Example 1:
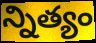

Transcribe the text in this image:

న్నిత్యం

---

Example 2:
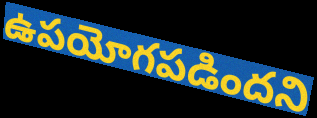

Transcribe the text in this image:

ఉపయోగపడిందని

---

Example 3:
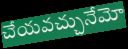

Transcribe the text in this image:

చేయవచ్చునేమో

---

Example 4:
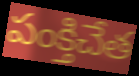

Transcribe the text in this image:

పంక్తిచేత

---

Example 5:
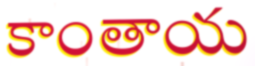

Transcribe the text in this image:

కాంతాయ